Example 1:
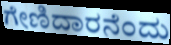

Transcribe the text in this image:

ಗೇಣಿದಾರನೆಂದು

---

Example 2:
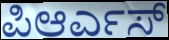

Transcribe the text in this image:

ಪಿಆರ್ಎಸ್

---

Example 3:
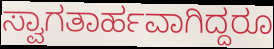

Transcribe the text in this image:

ಸ್ವಾಗತಾರ್ಹವಾಗಿದ್ದರೂ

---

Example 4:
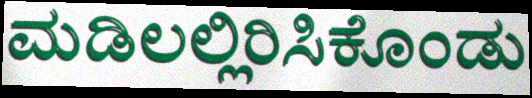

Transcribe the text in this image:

ಮಡಿಲಲ್ಲಿರಿಸಿಕೊಂಡು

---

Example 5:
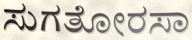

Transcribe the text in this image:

ಸುಗತೋರಸಾ